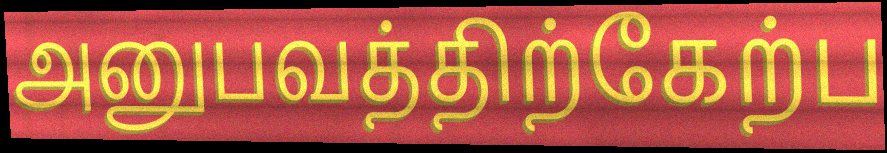
அனுபவத்திற்கேற்ப